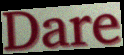
Dare